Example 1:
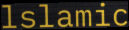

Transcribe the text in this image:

lslamic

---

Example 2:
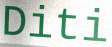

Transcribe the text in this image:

Diti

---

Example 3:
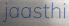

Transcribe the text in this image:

jaasthi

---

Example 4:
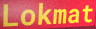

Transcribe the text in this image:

Lokmat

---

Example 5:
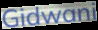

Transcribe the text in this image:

Gidwani